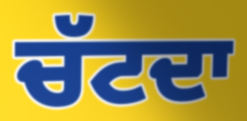
ਚੱਟਦਾ